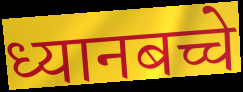
ध्यानबच्चे